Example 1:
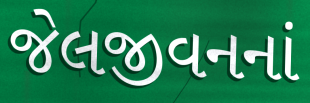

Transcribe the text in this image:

જેલજીવનનાં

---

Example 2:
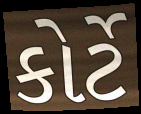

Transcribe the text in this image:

કોર્ટે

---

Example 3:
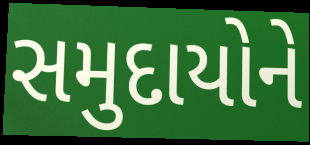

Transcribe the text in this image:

સમુદાયોને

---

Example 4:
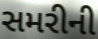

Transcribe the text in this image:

સમરીની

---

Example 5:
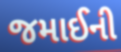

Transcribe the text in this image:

જમાઈની